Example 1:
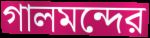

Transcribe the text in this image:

গালমন্দের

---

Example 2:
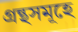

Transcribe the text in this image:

গ্রন্থসমূহে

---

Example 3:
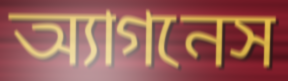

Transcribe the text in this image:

অ্যাগনেস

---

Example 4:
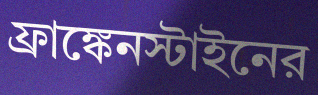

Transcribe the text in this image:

ফ্রাঙ্কেনস্টাইনের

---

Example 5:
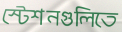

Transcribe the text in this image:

স্টেশনগুলিতে